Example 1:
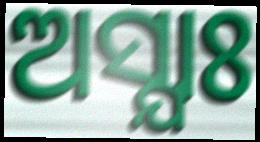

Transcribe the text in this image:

ଅସ୍ଯାଃ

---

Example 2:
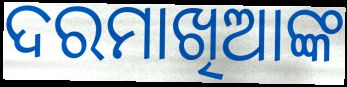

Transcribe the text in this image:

ଦରମାଖିଆଙ୍କ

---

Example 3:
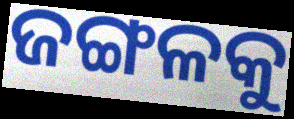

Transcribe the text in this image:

ଜଙ୍ଗଳକୁ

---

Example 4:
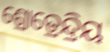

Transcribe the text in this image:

ଶ୍ରୋତ୍ରେନ୍ଦ୍ରିୟ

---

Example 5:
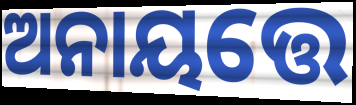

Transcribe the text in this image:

ଅନାୟତ୍ତେ